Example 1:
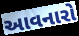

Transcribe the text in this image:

આવનારો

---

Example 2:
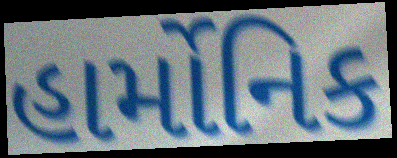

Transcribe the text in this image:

હાર્મોનિક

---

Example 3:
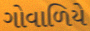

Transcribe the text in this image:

ગોવાળિયે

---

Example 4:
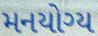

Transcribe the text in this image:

મનયોગ્ય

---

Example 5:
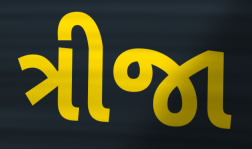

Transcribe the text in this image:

ત્રીજા